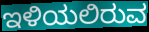
ಇಳಿಯಲಿರುವ